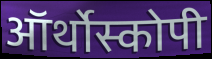
ऑर्थोस्कोपी